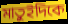
মাতুইদিকে